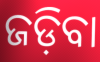
ଜଡ଼ିବା